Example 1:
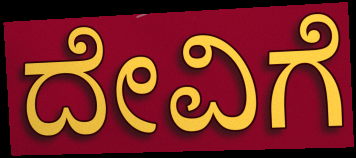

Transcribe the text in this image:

ದೇವಿಗೆ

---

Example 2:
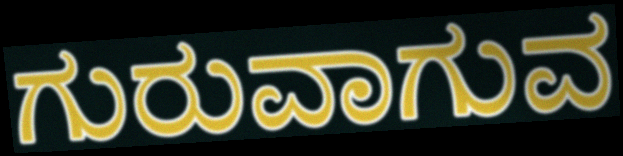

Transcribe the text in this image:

ಗುರುವಾಗುವ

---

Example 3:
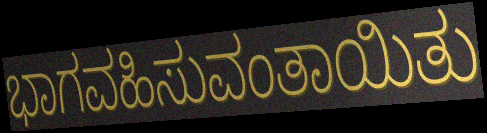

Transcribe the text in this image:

ಭಾಗವಹಿಸುವಂತಾಯಿತು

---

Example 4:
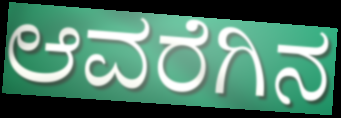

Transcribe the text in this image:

ಆವರೆಗಿನ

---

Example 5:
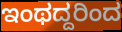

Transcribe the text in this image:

ಇಂಥದ್ದರಿಂದ